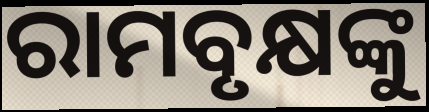
ରାମବୃକ୍ଷଙ୍କୁ